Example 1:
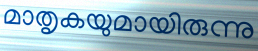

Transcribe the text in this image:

മാതൃകയുമായിരുന്നു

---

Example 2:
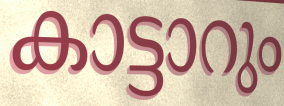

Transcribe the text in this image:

കാട്ടാറും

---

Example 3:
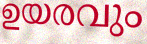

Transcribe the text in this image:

ഉയരവും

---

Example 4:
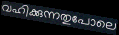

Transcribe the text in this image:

വഹിക്കുന്നതുപോലെ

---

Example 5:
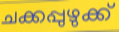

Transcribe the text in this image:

ചക്കപ്പുഴുക്ക്